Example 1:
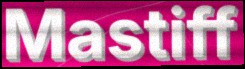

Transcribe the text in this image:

Mastiff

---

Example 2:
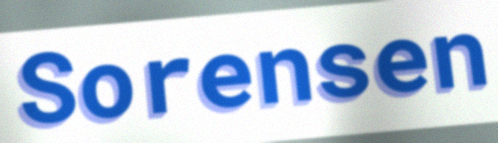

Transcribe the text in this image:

Sorensen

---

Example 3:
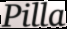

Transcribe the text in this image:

Pilla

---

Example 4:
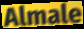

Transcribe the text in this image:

Almale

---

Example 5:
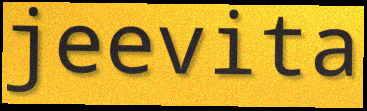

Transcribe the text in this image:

jeevita